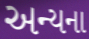
અન્યના